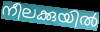
നീലക്കുയിൽ